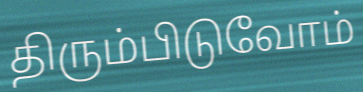
திரும்பிடுவோம்